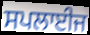
ਸਪਲਾਈਜ